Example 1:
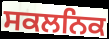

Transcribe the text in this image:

ਸਕਲਨਿਕ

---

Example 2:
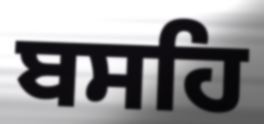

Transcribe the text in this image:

ਬਸਹਿ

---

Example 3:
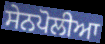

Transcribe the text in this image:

ਸੇਨਪੋਲੀਆ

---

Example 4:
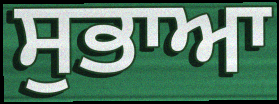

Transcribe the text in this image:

ਸੁਭਾਆ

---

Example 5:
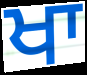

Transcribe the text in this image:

ਖਾ